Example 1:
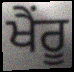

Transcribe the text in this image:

ਖੈਂਰੂ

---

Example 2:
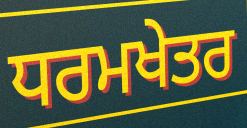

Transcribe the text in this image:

ਧਰਮਖੇਤਰ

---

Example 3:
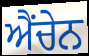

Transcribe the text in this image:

ਐਂਚੇਨ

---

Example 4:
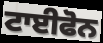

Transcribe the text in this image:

ਟਾਈਫੋਨ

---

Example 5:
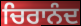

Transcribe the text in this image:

ਚਿਰਾਨੰਦ